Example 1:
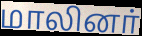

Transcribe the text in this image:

மாலினர்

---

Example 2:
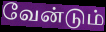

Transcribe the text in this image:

வேன்டும்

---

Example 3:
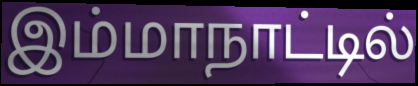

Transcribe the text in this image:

இம்மாநாட்டில்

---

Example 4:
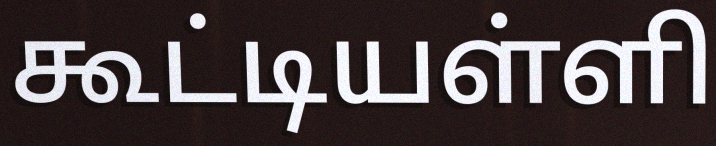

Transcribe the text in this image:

கூட்டியள்ளி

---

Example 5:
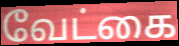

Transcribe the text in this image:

வேட்கை